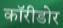
कॉरीडोर